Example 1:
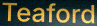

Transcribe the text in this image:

Teaford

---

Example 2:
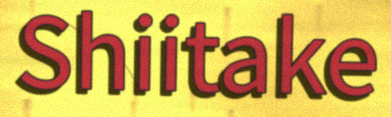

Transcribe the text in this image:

Shiitake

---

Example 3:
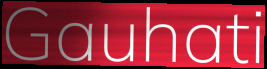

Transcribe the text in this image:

Gauhati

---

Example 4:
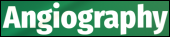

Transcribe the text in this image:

Angiography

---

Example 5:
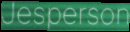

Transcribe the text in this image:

Jesperson